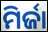
ମିର୍ଜା